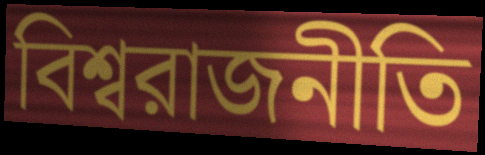
বিশ্বরাজনীতি